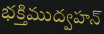
భక్తిముద్వహన్